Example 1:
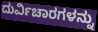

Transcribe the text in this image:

ದುರ್ವಿಚಾರಗಳನ್ನು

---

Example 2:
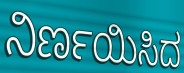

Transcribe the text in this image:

ನಿರ್ಣಯಿಸಿದ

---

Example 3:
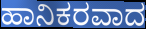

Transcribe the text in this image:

ಹಾನಿಕರವಾದ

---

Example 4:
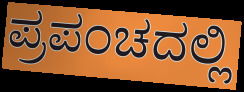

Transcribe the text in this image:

ಪ್ರಪಂಚದಲ್ಲಿ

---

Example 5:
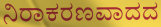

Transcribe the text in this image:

ನಿರಾಕರಣವಾದದ